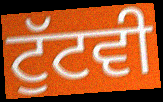
ਟੁੱਟਵੀ